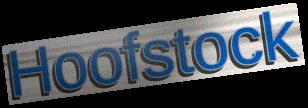
Hoofstock